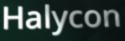
Halycon